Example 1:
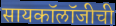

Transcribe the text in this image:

सायकॉलॉजीची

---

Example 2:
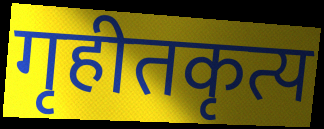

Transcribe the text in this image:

गृहीतकृत्य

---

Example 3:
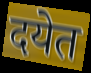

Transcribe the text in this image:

दयेत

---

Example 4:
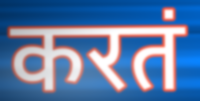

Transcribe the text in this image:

करतं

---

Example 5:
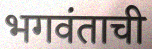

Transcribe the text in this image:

भगवंताची